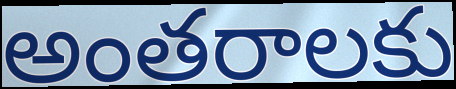
అంతరాలకు